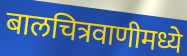
बालचित्रवाणीमध्ये